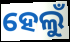
ହେଲୁଁ